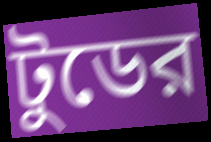
টুডের